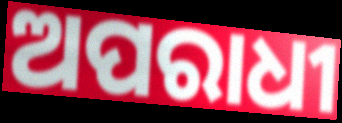
ଅପରାଧୀ